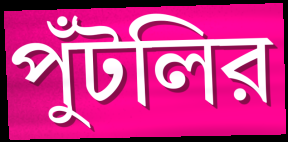
পুঁটলির